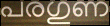
പരഗുണ